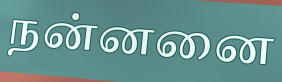
நன்னனை